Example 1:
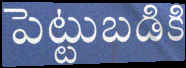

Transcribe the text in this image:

పెట్టుబడికి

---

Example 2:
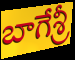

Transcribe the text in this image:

బాగేశ్రీ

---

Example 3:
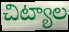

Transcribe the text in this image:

చిట్యాల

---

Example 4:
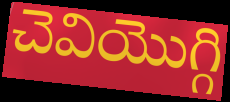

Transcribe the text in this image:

చెవియొగ్గి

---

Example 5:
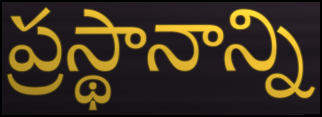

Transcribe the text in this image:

ప్రస్థానాన్ని